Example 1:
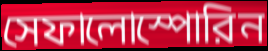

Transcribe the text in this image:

সেফালোস্পোরিন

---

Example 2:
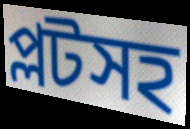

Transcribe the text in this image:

প্লটসহ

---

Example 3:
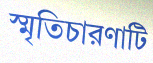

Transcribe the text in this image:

স্মৃতিচারণাটি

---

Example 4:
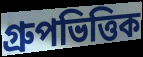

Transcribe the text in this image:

গ্রুপভিত্তিক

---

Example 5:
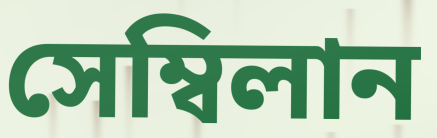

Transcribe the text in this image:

সেম্বিলান